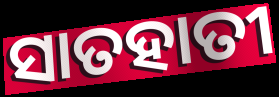
ସାତହାତୀ